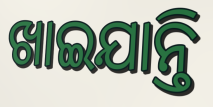
ଖାଇଯାନ୍ତି